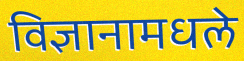
विज्ञानामधले